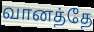
வானத்தே